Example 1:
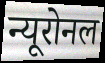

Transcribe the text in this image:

न्यूरोनल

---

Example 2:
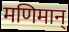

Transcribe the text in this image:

मणिमान्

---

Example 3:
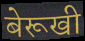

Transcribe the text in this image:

बेरूखी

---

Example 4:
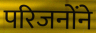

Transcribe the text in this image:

परिजनोंने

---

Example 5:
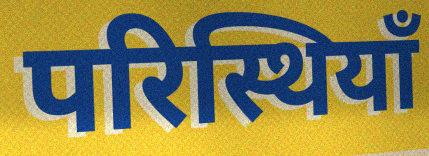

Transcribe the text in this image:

परिस्थियाँ